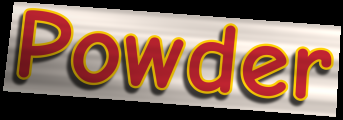
Powder